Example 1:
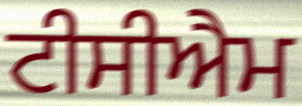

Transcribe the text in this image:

ਟੀਸੀਐਮ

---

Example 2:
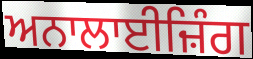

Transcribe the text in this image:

ਅਨਾਲਾਈਜ਼ਿੰਗ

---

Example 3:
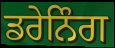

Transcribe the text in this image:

ਡਰੇਨਿੰਗ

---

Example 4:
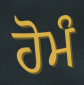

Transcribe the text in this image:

ਹੋਮੰ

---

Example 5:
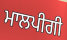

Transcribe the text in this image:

ਮਾਲਪੀਗੀ